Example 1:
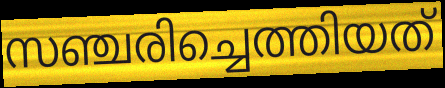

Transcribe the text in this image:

സഞ്ചരിച്ചെത്തിയത്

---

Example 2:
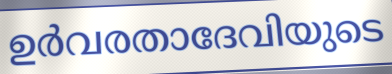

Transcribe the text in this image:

ഉർവരതാദേവിയുടെ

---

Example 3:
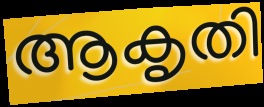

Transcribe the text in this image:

ആകൃതി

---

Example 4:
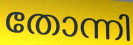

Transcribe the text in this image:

തോന്നി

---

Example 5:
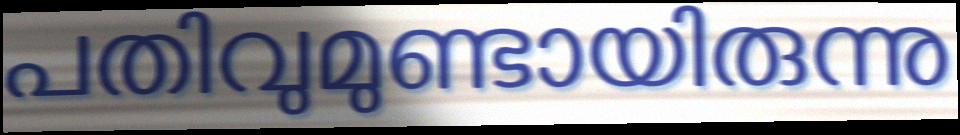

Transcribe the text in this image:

പതിവുമുണ്ടായിരുന്നു